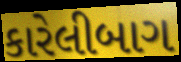
કારેલીબાગ